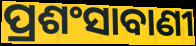
ପ୍ରଶଂସାବାଣୀ